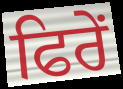
ਫਿਰੇਂ